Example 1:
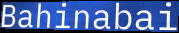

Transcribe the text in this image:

Bahinabai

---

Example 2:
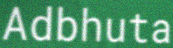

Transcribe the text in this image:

Adbhuta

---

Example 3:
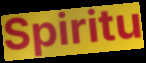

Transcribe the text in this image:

Spiritu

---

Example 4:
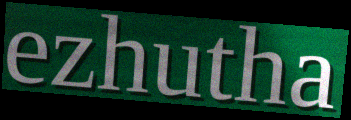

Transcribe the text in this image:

ezhutha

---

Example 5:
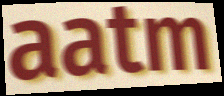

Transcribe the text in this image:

aatm